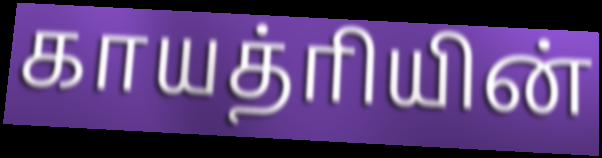
காயத்ரியின்